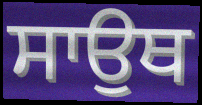
ਸਾਉਥ